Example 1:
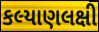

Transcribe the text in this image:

કલ્યાણલક્ષી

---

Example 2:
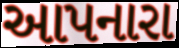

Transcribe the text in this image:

આપનારા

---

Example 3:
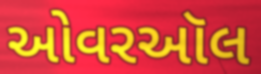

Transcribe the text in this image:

ઓવરઑલ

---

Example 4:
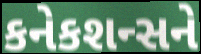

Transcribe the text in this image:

કનેકશન્સને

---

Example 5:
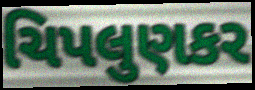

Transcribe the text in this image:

ચિપલુણકર